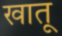
खातू